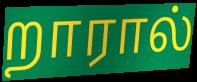
றாரால்